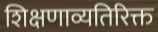
शिक्षणाव्यतिरिक्त